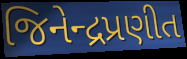
જિનેન્દ્રપ્રણીત